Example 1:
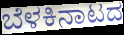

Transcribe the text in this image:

ಬೆಳಕಿನಾಟದ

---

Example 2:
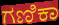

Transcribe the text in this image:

ಗಣಿಕಾ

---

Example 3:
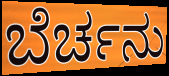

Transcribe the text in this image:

ಬೆರ್ಚನು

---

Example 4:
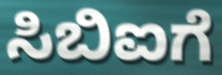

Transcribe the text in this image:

ಸಿಬಿಐಗೆ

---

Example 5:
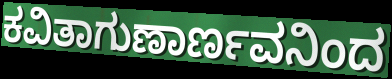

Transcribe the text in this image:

ಕವಿತಾಗುಣಾರ್ಣವನಿಂದ